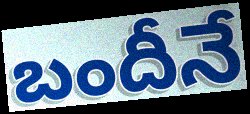
బందీనే